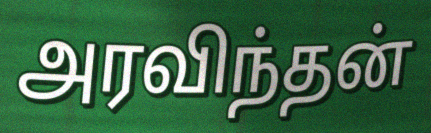
அரவிந்தன்